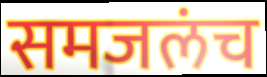
समजलंच